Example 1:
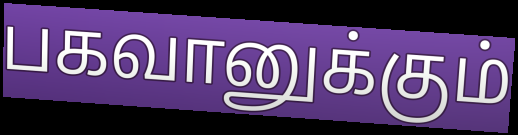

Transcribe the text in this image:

பகவானுக்கும்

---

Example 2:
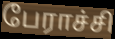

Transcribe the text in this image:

பேராச்சி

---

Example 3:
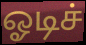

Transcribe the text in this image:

ஓடிச்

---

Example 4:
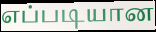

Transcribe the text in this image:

எப்படியான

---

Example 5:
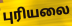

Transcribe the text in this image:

புரியலை